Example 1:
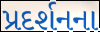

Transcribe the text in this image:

પ્રદર્શનના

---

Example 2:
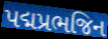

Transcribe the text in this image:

પદ્મપ્રભજિન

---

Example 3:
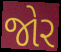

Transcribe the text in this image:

જોર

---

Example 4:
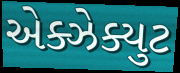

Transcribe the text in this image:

એક્ઝેક્યુટ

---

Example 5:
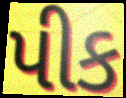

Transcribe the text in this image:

પીક